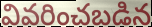
వివరించబడిన